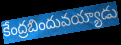
కేంద్రబిందువయ్యాడు